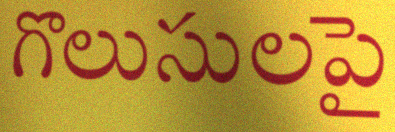
గొలుసులపై